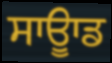
ਸਾਊਾਡ